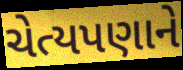
ચેત્યપણાને